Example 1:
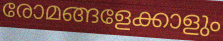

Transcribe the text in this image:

രോമങ്ങളേക്കാളും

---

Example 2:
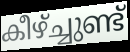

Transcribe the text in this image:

കീഴ്ച്ചുണ്ട്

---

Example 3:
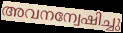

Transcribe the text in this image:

അവനന്വേഷിച്ചു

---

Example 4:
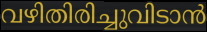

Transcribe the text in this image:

വഴിതിരിച്ചുവിടാൻ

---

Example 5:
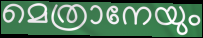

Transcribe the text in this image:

മെത്രാനേയും